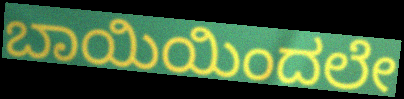
ಬಾಯಿಯಿಂದಲೇ